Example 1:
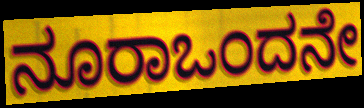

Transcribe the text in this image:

ನೂರಾಒಂದನೇ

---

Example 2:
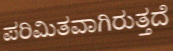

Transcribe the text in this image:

ಪರಿಮಿತವಾಗಿರುತ್ತದೆ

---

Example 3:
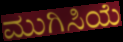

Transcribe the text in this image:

ಮುಗಿಸಿಯೆ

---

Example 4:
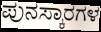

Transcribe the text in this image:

ಪುನಸ್ಕಾರಗಳ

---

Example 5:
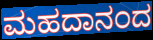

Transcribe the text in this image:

ಮಹದಾನಂದ